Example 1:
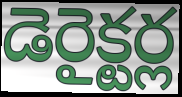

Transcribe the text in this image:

డెరైక్టర్ల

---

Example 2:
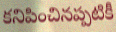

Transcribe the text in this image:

కనిపించినప్పటికీ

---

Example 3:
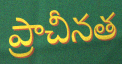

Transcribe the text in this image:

ప్రాచీనత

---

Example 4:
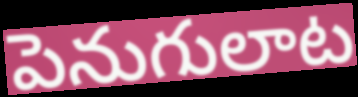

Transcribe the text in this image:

పెనుగులాట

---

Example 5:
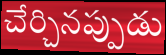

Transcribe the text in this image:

చేర్చినప్పుడు